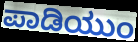
ಪಾಡಿಯುಂ